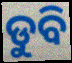
ଡୁବି